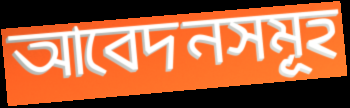
আবেদনসমূহ